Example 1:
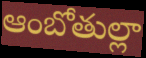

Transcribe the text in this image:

ఆంబోతుల్లా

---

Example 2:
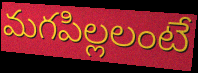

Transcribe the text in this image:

మగపిల్లలంటే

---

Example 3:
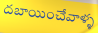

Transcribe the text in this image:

దబాయించేవాళ్ళ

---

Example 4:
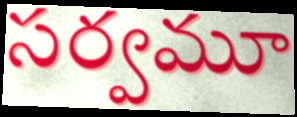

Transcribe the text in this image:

సర్వమూ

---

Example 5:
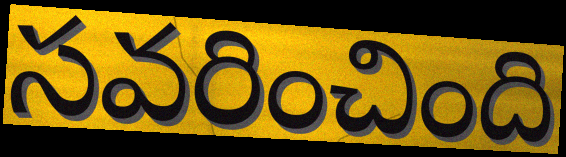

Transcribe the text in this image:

సవరించింది